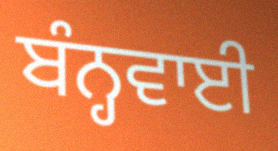
ਬੰਨ੍ਹਵਾਈ